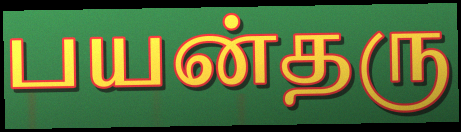
பயன்தரு